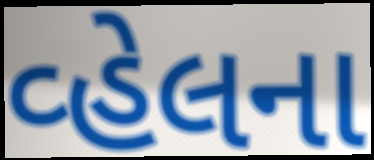
વ્હેલના